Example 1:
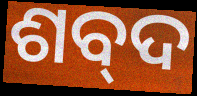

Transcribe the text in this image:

ଶବ୍‌ଦ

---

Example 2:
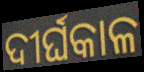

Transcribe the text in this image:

ଦୀର୍ଘକାଳ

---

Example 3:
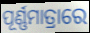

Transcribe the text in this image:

ପୂର୍ଣ୍ଣମାତ୍ରାରେ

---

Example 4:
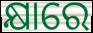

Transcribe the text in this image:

କ୍ଷାରେ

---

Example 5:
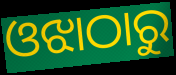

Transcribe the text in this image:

ଓଝାଠାରୁ